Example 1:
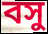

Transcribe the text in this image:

বসু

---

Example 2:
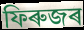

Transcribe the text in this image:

ফিৰুজৰ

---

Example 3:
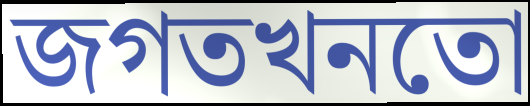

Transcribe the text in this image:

জগতখনতো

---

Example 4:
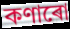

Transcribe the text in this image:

কণাৰো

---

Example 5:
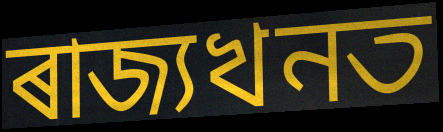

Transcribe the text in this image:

ৰাজ্যখনত